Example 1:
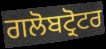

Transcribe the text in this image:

ਗਲੋਬਟ੍ਰੋਟਰ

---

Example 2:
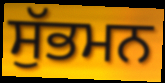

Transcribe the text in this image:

ਸੁੱਭਮਨ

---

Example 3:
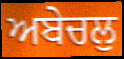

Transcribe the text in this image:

ਅਬੇਚਲੁ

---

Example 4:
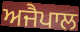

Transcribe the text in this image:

ਅਜੈਪਾਲ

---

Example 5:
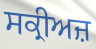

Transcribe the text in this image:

ਸਕ੍ਰੀਅਜ਼